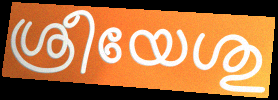
ശ്രീയേശു